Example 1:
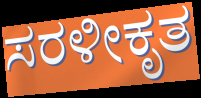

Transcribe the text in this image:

ಸರಳೀಕೃತ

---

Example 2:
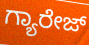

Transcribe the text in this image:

ಗ್ಯಾರೇಜ್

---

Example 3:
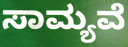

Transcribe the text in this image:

ಸಾಮ್ಯವೆ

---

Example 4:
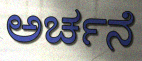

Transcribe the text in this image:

ಅರ್ಚನೆ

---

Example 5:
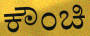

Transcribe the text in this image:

ಕೌಂಚಿ